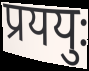
प्रययुः